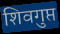
शिवगुप्त